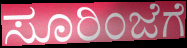
ಸೂರಿಂಜೆಗೆ